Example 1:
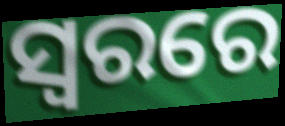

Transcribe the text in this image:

ସ୍ୱରରେ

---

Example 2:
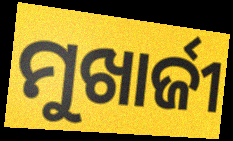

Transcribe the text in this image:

ମୁଖାର୍ଜୀ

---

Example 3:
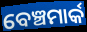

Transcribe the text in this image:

ବେଞ୍ଚମାର୍କ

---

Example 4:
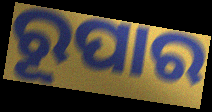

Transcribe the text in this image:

ରୂପାର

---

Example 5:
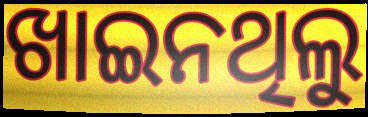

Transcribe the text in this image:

ଖାଇନଥିଲୁ